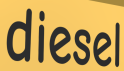
diesel